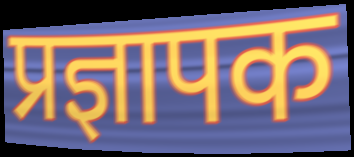
प्रज्ञापक